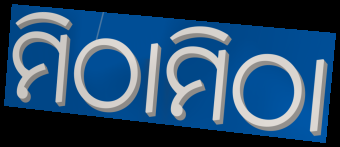
ମିଠାମିଠା